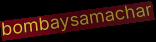
bombaysamachar